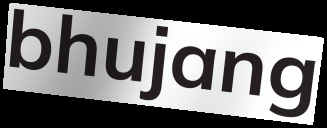
bhujang